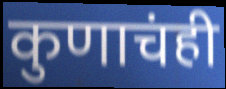
कुणाचंही